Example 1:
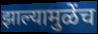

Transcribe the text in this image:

झाल्यामुळेंच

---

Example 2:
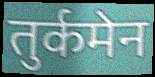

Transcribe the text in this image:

तुर्कमेन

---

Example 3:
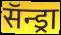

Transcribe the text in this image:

सॅन्ड्रा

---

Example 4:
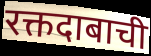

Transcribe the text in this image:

रक्तदाबाची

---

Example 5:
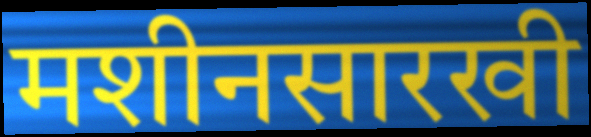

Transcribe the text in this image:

मशीनसारखी